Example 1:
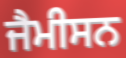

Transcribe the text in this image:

ਜੈਮੀਸਨ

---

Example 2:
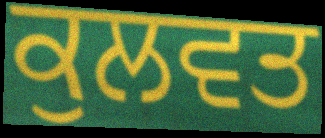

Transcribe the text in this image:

ਕੁਲਵਤ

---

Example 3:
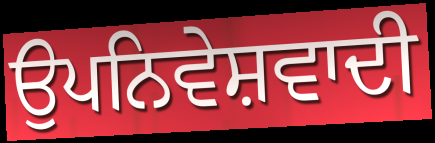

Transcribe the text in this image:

ਉਪਨਿਵੇਸ਼ਵਾਦੀ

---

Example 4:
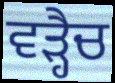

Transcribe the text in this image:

ਵੜ੍ਹੈਚ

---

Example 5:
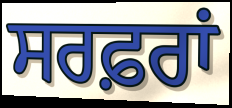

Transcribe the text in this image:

ਸਰਫ਼ਰਾਂ